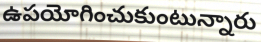
ఉపయోగించుకుంటున్నారు